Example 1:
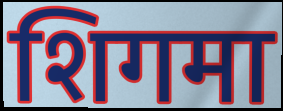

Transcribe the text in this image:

शिगमा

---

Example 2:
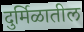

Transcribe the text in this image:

दुर्मिळातील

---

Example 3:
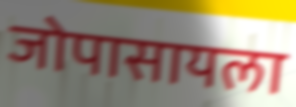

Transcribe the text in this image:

जोपासायला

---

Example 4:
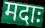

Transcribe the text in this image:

मदाः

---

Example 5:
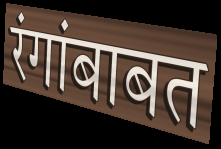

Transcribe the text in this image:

रंगांबाबत